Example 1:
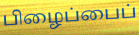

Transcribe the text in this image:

பிழைப்பைப்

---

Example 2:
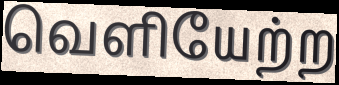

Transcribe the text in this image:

வெளியேற்ற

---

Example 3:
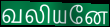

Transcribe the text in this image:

வலியனே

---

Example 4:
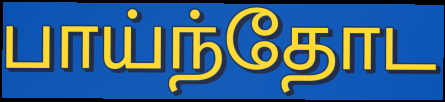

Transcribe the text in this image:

பாய்ந்தோட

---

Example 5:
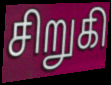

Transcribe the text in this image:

சிறுகி